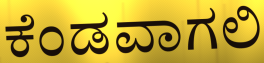
ಕೆಂಡವಾಗಲಿ